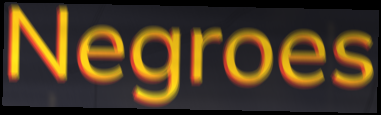
Negroes